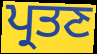
ਪ੍ਰਤਣ